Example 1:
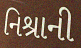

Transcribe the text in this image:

નિશ્રાની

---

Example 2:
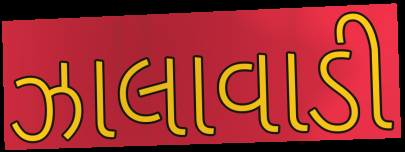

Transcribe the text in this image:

ઝાલાવાડી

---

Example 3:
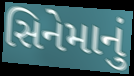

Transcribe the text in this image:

સિનેમાનું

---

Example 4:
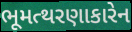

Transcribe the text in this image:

ભૂમત્થરણાકારેન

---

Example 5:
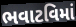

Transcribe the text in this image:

ભવાટવિમાં